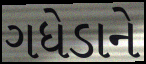
ગધેડાને